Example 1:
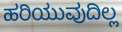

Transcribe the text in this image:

ಹರಿಯುವುದಿಲ್ಲ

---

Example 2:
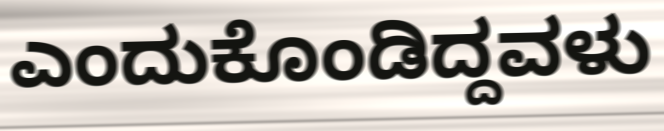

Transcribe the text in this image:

ಎಂದುಕೊಂಡಿದ್ದವಳು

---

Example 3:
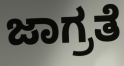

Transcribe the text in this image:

ಜಾಗ್ರತೆ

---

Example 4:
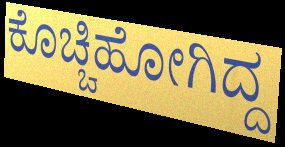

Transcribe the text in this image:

ಕೊಚ್ಚಿಹೋಗಿದ್ದ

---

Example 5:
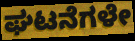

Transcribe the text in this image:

ಘಟನೆಗಳೇ